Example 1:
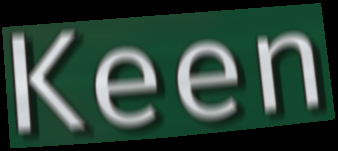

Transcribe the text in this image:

Keen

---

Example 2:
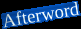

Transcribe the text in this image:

Afterword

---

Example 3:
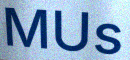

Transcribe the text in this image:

MUs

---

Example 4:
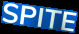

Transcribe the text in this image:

SPITE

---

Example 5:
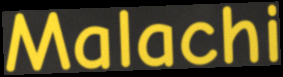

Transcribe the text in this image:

Malachi